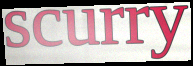
scurry